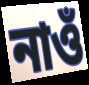
নাওঁ